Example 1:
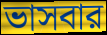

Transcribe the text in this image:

ভাসবার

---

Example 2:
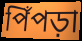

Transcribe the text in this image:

পিঁপড়া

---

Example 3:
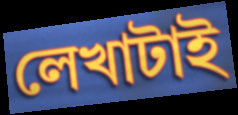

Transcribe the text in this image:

লেখাটাই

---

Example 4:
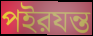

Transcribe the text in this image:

পইরযন্ত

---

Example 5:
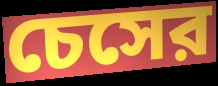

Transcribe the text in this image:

চেসের